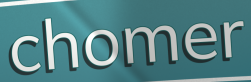
chomer